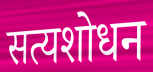
सत्यशोधन